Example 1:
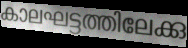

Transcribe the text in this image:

കാലഘട്ടത്തിലേക്കു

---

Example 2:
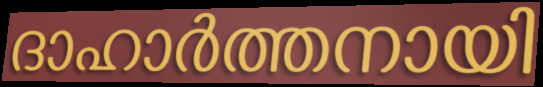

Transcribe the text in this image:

ദാഹാർത്തനായി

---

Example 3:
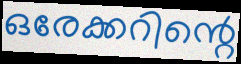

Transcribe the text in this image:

ഒരേക്കറിന്റെ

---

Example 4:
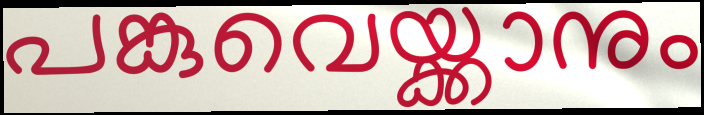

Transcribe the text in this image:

പങ്കുവെയ്ക്കാനും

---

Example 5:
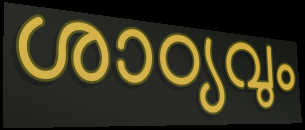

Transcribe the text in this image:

ശാഠ്യവും